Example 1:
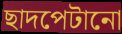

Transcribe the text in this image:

ছাদপেটানো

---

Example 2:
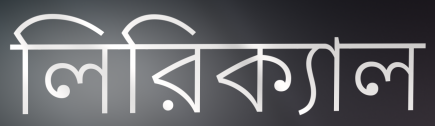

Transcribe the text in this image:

লিরিক্যাল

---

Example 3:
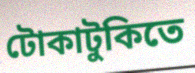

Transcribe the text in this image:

টোকাটুকিতে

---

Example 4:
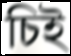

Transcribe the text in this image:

চিই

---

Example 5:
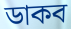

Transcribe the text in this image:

ডাকব